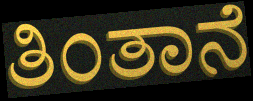
ತಿಂತಾನೆ